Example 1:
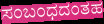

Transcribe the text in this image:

ಸಂಬಂಧದಂತಹ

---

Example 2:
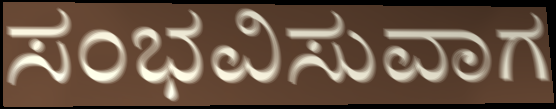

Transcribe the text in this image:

ಸಂಭವಿಸುವಾಗ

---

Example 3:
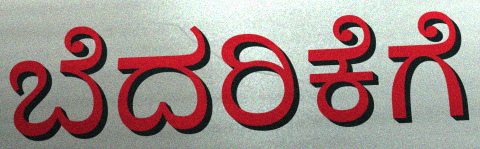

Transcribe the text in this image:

ಬೆದರಿಕೆಗೆ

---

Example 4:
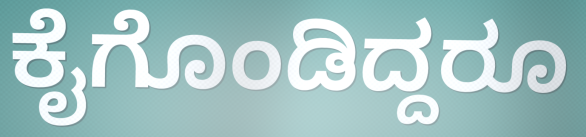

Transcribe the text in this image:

ಕೈಗೊಂಡಿದ್ದರೂ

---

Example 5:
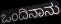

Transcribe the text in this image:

ಒಂದಿನಾನು